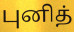
புனித்